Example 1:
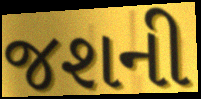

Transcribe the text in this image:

જશની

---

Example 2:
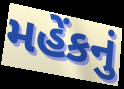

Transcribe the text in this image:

મહેંકનું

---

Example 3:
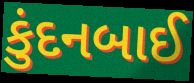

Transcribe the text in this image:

કુંદનબાઈ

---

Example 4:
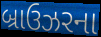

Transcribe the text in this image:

બ્રાઉઝરના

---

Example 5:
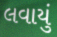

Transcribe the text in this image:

લવાયું